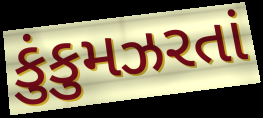
કુંકુમઝરતાં